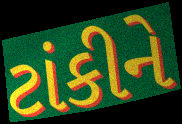
ટાંકીને